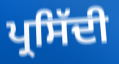
ਪ੍ਰਸਿੱਦੀ